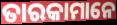
ତାରକାମାନେ